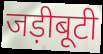
जड़ीबूटी